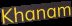
Khanam